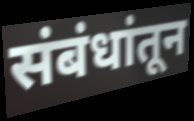
संबंधांतून